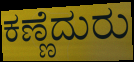
ಕಣ್ಣೆದುರು